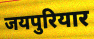
जयपुरियार